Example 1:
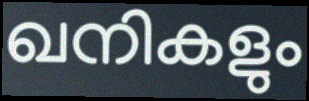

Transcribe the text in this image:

ഖനികളും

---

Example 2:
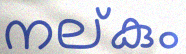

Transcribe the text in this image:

നല്കും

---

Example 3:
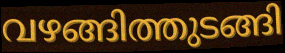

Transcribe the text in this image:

വഴങ്ങിത്തുടങ്ങി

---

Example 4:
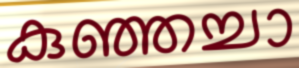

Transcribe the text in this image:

കുഞ്ഞച്ചാ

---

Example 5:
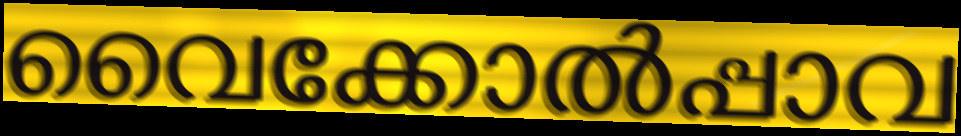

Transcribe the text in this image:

വൈക്കോൽപ്പാവ